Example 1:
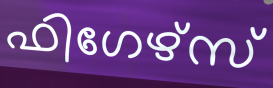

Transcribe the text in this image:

ഫിഗേഴ്സ്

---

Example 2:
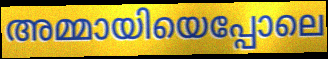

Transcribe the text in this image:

അമ്മായിയെപ്പോലെ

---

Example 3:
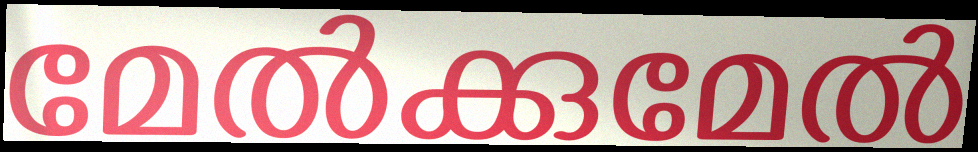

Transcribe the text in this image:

മേൽക്കുമേൽ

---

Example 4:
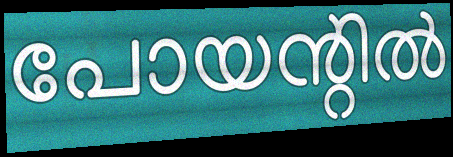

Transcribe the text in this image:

പോയന്റിൽ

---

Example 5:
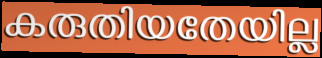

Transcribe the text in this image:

കരുതിയതേയില്ല